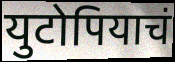
युटोपियाचं